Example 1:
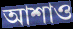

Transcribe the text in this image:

আশাও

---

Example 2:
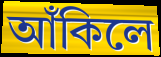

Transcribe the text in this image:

আঁকিলে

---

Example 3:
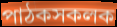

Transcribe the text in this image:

পাঠকসকলক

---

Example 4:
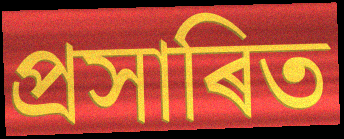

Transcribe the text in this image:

প্ৰসাৰিত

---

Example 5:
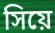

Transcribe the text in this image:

সিয়ে